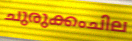
ചുരുക്കംചില